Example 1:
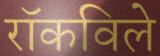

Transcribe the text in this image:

रॉकविले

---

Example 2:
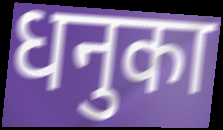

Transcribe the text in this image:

धनुका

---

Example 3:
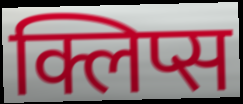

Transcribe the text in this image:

क्लिप्स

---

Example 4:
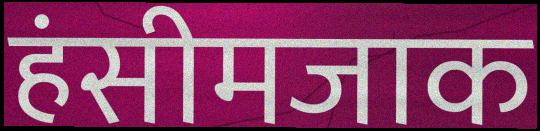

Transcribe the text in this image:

हंसीमजाक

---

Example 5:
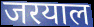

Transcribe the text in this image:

जरयाल